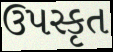
ઉપસ્કૃત